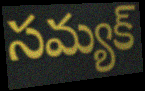
సమ్యక్